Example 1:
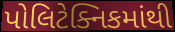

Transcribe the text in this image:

પોલિટેક્નિકમાંથી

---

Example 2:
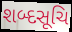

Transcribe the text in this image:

શબ્દસૂચિ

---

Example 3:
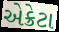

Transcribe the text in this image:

એક્રેટા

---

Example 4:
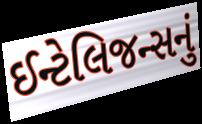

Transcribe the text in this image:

ઈન્ટેલિજન્સનું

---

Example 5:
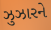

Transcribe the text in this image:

ઝુઝારને